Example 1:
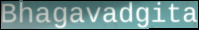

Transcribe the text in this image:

Bhagavadgita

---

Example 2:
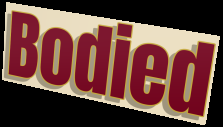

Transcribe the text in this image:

Bodied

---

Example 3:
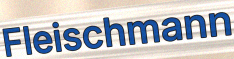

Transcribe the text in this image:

Fleischmann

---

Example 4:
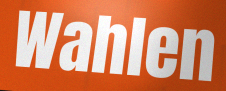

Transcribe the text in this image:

Wahlen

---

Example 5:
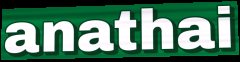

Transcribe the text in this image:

anathai